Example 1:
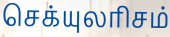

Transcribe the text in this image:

செக்யுலரிசம்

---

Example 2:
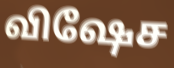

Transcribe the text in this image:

விஷேச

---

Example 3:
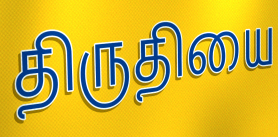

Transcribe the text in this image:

திருதியை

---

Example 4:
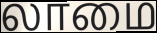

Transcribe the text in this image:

லாமை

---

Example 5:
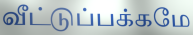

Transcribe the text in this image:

வீட்டுப்பக்கமே